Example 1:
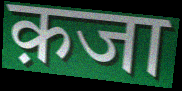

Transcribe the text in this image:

क़जा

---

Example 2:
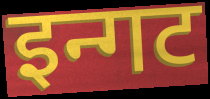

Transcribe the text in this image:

इन्गट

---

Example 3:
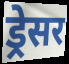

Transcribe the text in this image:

ड्रेसर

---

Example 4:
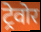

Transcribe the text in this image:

ट्रेवोर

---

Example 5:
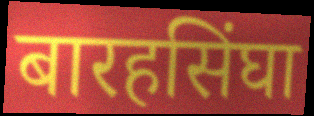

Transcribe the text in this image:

बारहसिंघा